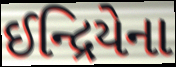
ઈન્દ્રિયેના